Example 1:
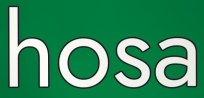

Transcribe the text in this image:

hosa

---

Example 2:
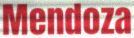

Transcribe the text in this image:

Mendoza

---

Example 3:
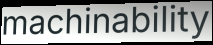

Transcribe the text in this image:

machinability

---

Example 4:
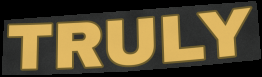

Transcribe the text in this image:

TRULY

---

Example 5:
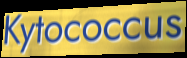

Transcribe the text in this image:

Kytococcus